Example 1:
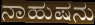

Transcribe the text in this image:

ನಾಹುಷನು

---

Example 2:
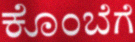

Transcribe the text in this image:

ಕೊಂಬೆಗೆ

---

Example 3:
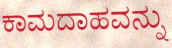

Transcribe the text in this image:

ಕಾಮದಾಹವನ್ನು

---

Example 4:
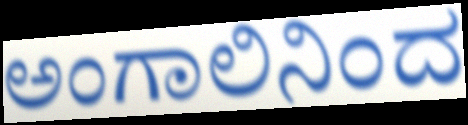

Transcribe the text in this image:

ಅಂಗಾಲಿನಿಂದ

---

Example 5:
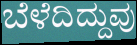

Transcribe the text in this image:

ಬೆಳೆದಿದ್ದುವು